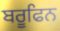
ਬਰੂਫਿਨ